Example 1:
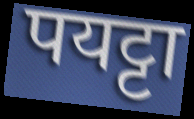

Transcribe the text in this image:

पयट्टा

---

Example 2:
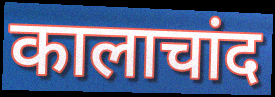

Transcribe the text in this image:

कालाचांद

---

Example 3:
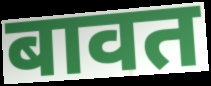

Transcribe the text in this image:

बावत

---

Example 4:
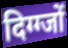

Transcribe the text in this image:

दिग्ग्जों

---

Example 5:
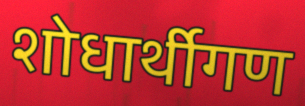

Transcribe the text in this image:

शोधार्थीगण